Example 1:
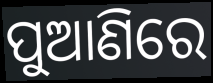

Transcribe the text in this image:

ପୁଆଣିରେ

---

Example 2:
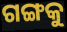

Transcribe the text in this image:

ଗଙ୍ଗକୁ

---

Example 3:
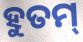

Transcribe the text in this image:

ହୁତମ୍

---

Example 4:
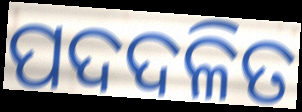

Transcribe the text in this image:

ପଦଦଳିତ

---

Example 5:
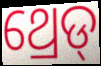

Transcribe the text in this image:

ଥ୍ରେଡ୍